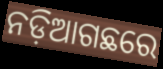
ନଡ଼ିଆଗଛରେ